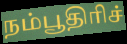
நம்பூதிரிச்